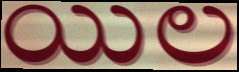
యిల